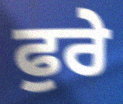
ਫੁਰੇ